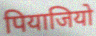
पियाजियो